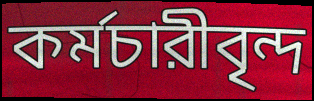
কর্মচারীবৃন্দ